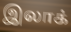
இலாக்